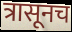
त्रासूनच